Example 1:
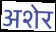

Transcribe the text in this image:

अशेर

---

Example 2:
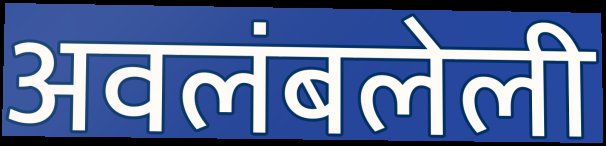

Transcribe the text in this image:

अवलंबलेली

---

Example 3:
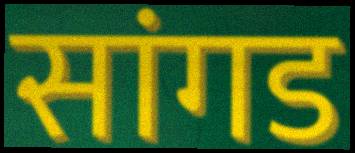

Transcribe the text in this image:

सांगड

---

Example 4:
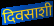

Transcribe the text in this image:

दिवसाशी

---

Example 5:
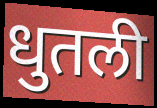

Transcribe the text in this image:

धुतली